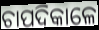
ଚାପଦିକାଳେ